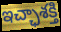
ఇచ్ఛాశక్తి